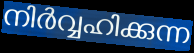
നിർവ്വഹിക്കുന്ന